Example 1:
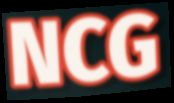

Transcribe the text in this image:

NCG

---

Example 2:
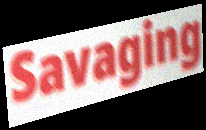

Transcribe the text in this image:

Savaging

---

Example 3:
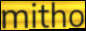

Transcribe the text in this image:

mitho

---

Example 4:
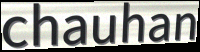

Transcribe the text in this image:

chauhan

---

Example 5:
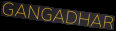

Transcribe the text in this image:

GANGADHAR